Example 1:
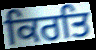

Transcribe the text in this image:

ਕਿਰਤਿ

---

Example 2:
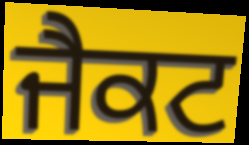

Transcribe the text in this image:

ਜੈਕਟ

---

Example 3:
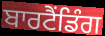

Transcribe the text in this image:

ਬਾਰਟੈਂਡਿੰਗ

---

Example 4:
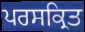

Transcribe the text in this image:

ਪਰਸਕ੍ਰਿਤ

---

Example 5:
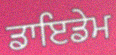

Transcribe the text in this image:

ਡਾਇਡੇਮ